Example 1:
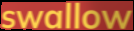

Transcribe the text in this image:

swallow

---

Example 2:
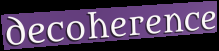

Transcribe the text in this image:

decoherence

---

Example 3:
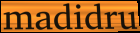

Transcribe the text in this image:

madidru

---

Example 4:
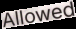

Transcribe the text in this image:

Allowed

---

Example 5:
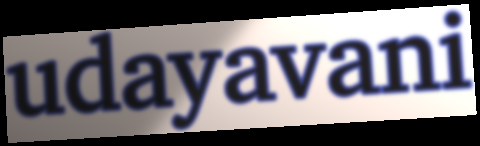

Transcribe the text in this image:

udayavani